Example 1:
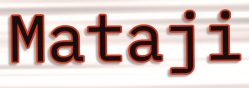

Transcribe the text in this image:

Mataji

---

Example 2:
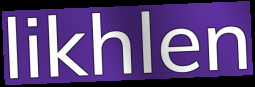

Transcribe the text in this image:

likhlen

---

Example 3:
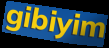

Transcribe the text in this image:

gibiyim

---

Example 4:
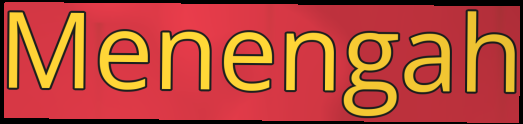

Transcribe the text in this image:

Menengah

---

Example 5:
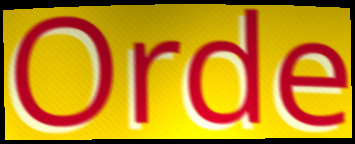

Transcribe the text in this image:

Orde